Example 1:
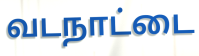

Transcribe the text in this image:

வடநாட்டை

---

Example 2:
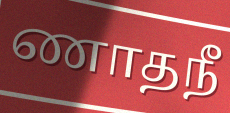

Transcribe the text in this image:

ணாதநீ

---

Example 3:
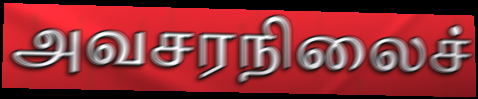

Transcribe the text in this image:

அவசரநிலைச்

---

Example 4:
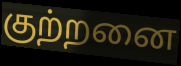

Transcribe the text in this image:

குற்றனை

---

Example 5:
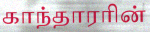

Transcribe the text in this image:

காந்தாரரின்